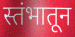
स्तंभातून